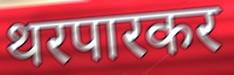
थरपारकर